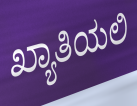
ಖ್ಯಾತಿಯಲಿ